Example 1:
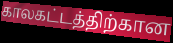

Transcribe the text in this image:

காலகட்டத்திற்கான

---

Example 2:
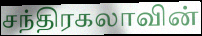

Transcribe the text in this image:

சந்திரகலாவின்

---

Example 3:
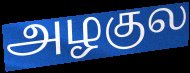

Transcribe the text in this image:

அழகுல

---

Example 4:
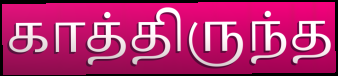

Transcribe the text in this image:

காத்திருந்த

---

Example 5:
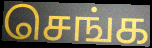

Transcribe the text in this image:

செங்க